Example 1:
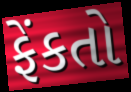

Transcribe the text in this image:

ફેંકતો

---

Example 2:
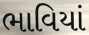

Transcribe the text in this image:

ભાવિયાં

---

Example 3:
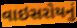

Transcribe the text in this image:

વાઇસરોયનું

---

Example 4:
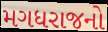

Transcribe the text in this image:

મગધરાજનો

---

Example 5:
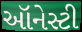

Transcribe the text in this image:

ઑનેસ્ટી